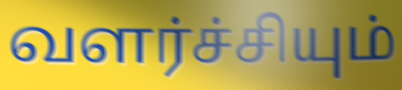
வளர்ச்சியும்